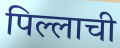
पिल्लाची